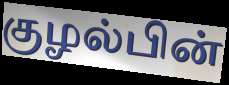
குழல்பின்